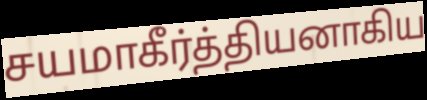
சயமாகீர்த்தியனாகிய